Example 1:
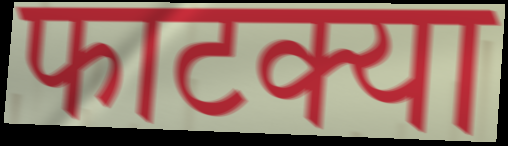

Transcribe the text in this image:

फाटक्या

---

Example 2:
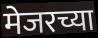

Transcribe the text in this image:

मेजरच्या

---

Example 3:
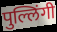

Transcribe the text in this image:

पुल्लिंगी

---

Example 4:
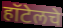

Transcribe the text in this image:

हॉटेलचे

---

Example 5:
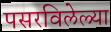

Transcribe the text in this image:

पसरविलेल्या